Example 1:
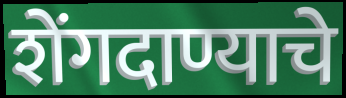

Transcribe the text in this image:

शेंगदाण्याचे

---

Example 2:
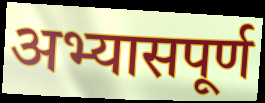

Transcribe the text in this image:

अभ्यासपूर्ण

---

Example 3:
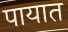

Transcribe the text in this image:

पायात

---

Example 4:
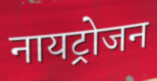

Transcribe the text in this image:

नायट्रोजन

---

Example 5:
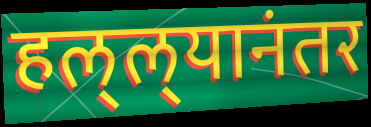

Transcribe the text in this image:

हल्ल्यानंतर